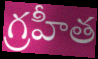
గ్రహీత